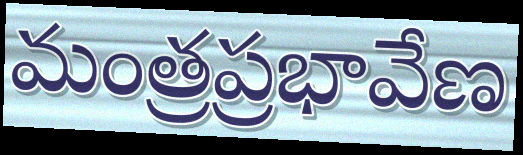
మంత్రప్రభావేణ